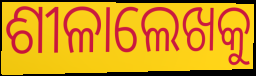
ଶୀଳାଲେଖକୁ